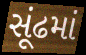
સૂંઢમાં